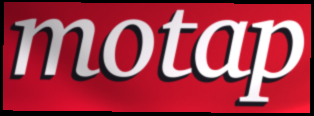
motap